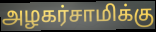
அழகர்சாமிக்கு